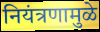
नियंत्रणामुळे